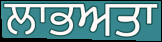
ਲਾਭਅਤਾ